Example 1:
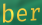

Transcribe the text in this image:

ber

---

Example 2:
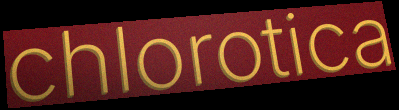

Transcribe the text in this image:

chlorotica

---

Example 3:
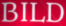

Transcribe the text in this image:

BILD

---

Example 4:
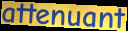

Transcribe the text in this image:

attenuant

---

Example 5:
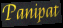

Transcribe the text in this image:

Panipat